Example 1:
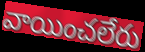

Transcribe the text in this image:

వాయించలేరు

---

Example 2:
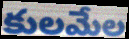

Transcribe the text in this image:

కులమేల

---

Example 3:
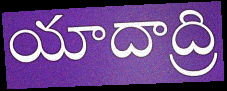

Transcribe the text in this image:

యాదాద్రి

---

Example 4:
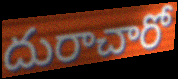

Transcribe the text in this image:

దురాచారో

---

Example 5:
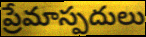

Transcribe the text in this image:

ప్రేమాస్పదులు